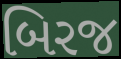
બિરજ